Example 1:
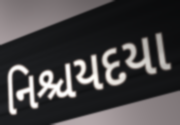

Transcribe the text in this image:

નિશ્ચયદયા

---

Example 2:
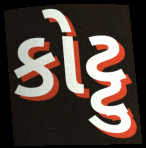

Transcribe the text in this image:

કોટ્ટુ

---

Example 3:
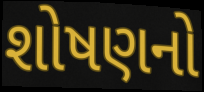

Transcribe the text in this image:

શોષણનો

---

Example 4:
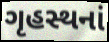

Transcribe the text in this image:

ગૃહસ્થનાં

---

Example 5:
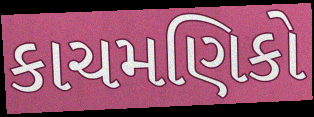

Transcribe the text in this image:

કાચમણિકો